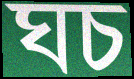
ঘচ